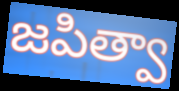
జపిత్వా